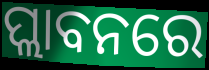
ପ୍ଲାବନରେ